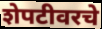
शेपटीवरचे